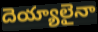
దెయ్యాలైనా